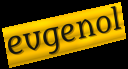
eugenol